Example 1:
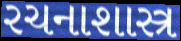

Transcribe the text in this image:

રચનાશાસ્ત્ર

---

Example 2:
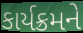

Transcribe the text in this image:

કાર્યક્રમને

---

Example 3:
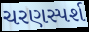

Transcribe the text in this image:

ચરણસ્પર્શ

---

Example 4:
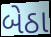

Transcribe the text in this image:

બેઠા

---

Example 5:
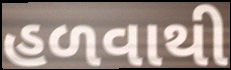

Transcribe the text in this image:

હળવાથી